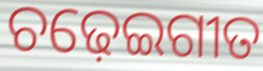
ଚଢ଼େଇଗୀତ